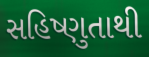
સહિષ્ણુતાથી